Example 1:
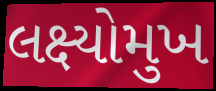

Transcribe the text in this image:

લક્ષ્યોમુખ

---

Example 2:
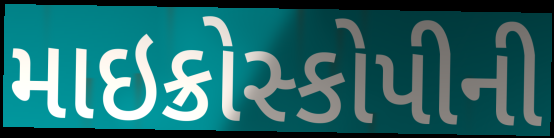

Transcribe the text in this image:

માઇક્રોસ્કોપીની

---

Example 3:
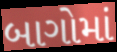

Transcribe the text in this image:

બાગોમાં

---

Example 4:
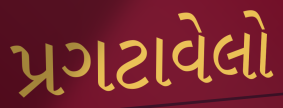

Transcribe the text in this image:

પ્રગટાવેલો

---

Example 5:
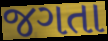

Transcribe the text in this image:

જગતા